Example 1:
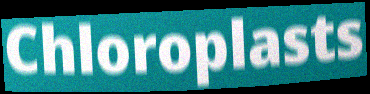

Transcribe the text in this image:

Chloroplasts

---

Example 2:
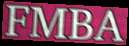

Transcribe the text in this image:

FMBA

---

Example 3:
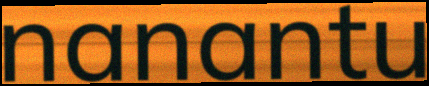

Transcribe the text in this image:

nanantu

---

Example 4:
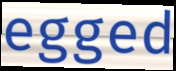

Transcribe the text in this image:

egged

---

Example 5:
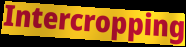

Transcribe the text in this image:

Intercropping